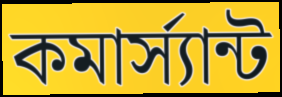
কমার্স্যান্ট